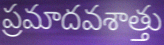
ప్రమాదవశాత్తు